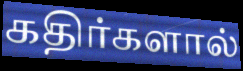
கதிர்களால்